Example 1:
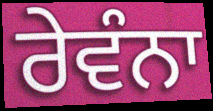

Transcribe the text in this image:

ਰੇਵੰਨਾ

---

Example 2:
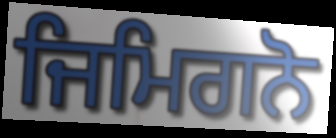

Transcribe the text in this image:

ਜਿਮਿਗਨੋ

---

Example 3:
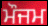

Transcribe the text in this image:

ਮੌਜਮ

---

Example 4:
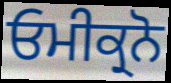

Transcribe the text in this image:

ਓਮੀਕ੍ਰਨੋ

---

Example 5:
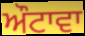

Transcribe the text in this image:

ਔਟਾਵਾ